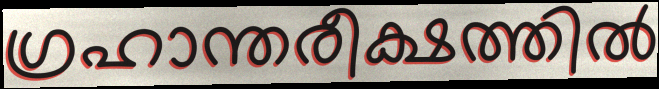
ഗ്രഹാന്തരീക്ഷത്തിൽ